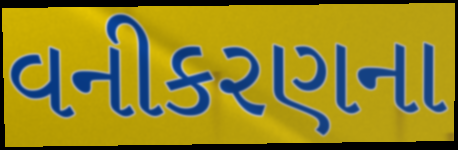
વનીકરણના